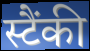
स्टैंकी